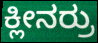
ಕ್ಲೀನರ್ರು